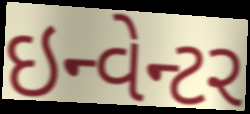
ઇન્વેન્ટર